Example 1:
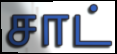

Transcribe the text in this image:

சாட்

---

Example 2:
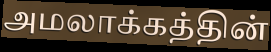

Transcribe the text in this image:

அமலாக்கத்தின்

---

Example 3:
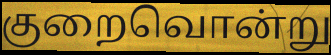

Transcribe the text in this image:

குறைவொன்று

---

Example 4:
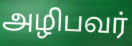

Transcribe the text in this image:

அழிபவர்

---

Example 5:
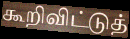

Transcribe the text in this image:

கூறிவிட்டுத்